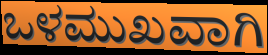
ಒಳಮುಖವಾಗಿ